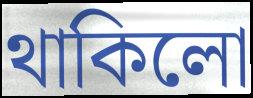
থাকিলো